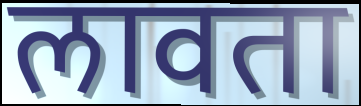
लावता